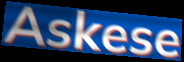
Askese